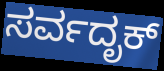
ಸರ್ವದೃಕ್